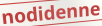
nodidenne